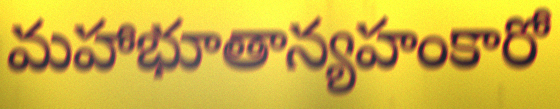
మహాభూతాన్యహంకారో